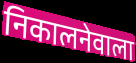
निकालनेवाला